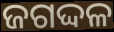
ଜଗଦ୍ଦଳ